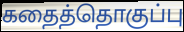
கதைத்தொகுப்பு